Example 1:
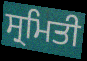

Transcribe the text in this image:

ਸ੍ਰਮਿਤੀ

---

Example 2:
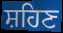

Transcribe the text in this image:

ਸ਼ਹਿਣ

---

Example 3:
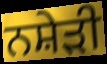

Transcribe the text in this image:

ਨਸ਼ੇੜੀ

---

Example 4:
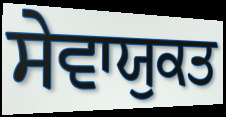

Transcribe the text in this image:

ਸੇਵਾਯੁਕਤ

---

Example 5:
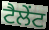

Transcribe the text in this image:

ਟੈਲੇੰਟ